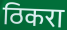
ठिकरा